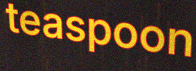
teaspoon